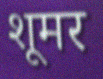
शूमर